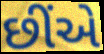
છીંએ